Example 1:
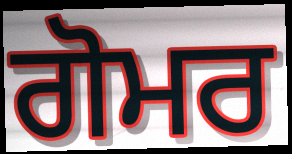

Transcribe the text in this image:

ਗੋਮਰ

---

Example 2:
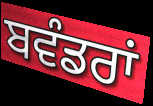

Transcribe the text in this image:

ਬਵੰਡਰਾਂ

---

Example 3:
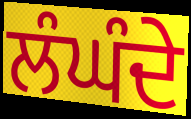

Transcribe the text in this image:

ਲੰਘੰਦੇ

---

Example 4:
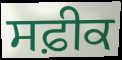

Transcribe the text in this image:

ਸਫ਼ੀਕ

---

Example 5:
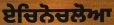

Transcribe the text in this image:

ਏਚਿਨੋਚਲੋਆ